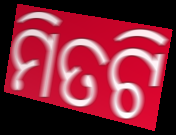
ମିତଟି